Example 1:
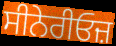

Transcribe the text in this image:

ਸੀਨੇਰੀਓਜ਼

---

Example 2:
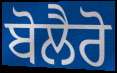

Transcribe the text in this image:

ਬੋਲੈਰੋ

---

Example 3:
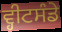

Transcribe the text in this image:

ਵ੍ਹੀਟਸੰਡੇ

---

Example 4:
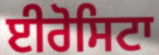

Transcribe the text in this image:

ਈਰੋਸਿਟਾ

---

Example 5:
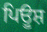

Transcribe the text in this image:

ਪਿਊਸ਼